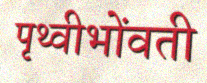
पृथ्वीभोंवती